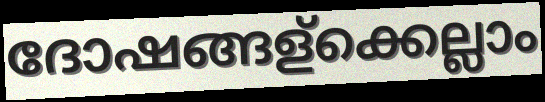
ദോഷങ്ങള്ക്കെല്ലാം